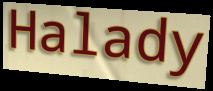
Halady